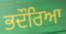
ਭਦੌਰਿਆ